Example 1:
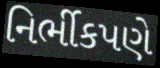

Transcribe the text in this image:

નિર્ભીકપણે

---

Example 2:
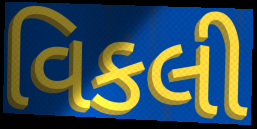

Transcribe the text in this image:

વિકલી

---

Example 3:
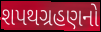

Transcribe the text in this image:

શપથગ્રહણનો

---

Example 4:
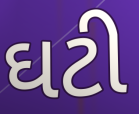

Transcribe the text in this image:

ઘટી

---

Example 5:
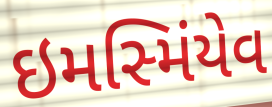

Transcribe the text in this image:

ઇમસ્મિંયેવ